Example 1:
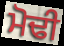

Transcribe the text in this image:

ਮੋਢੀ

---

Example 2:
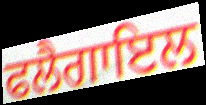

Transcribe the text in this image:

ਫਲੈਗਾਇਲ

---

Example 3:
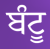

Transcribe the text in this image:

ਬੰਟੂ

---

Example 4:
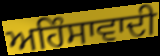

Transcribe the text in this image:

ਅਹਿੰਸਾਵਾਦੀ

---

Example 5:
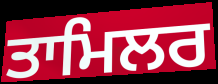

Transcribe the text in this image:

ਤਾਮਿਲਰ